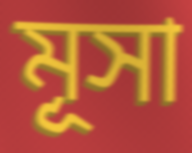
মূসা